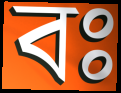
বঃ